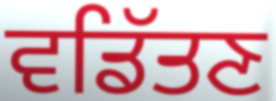
ਵਡਿੱਤਣ